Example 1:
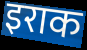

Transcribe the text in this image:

इराक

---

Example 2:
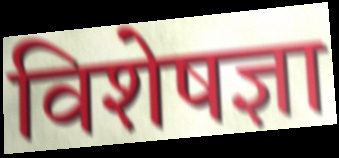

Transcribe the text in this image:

विशेषज्ञा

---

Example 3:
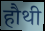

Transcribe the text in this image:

हौथी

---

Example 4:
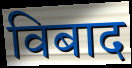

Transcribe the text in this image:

विबाद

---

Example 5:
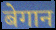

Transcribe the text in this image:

बेगान